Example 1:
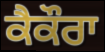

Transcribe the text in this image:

ਕੈਕੌਰਾ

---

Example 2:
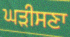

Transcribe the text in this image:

ਘੜੀਸਣਾ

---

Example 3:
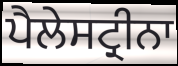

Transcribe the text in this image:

ਪੈਲੇਸਟ੍ਰੀਨਾ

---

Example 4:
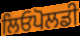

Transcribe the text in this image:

ਲਿਓਪੋਲਡੀ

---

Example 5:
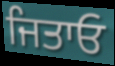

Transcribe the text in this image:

ਜਿਤਾਓ